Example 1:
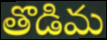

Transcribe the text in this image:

తొడిమ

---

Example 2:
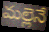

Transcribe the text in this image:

మల్లెనే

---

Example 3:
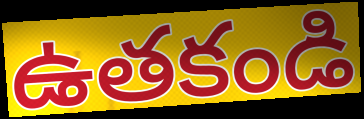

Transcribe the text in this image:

ఉతకండి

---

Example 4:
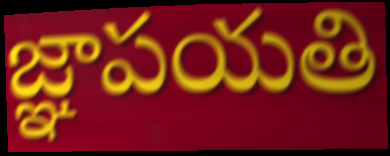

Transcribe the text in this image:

జ్ఞాపయతి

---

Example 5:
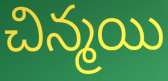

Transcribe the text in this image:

చిన్మయి